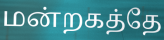
மன்றகத்தே